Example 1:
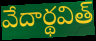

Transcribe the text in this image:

వేదార్థవిత్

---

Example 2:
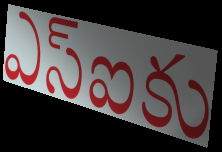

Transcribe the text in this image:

ఎస్ఐకు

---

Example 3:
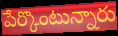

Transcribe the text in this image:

పేర్కొంటున్నారు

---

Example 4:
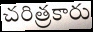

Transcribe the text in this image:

చరిత్రకారు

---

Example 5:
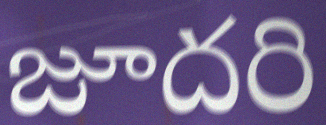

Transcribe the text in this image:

జూదరి